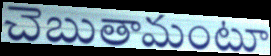
చెబుతామంటూ